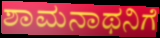
ಶಾಮನಾಥನಿಗೆ